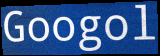
Googol